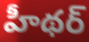
హీథర్